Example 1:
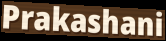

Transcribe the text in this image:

Prakashani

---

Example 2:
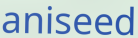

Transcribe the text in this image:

aniseed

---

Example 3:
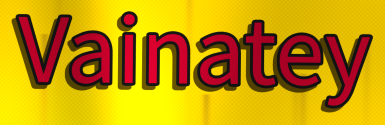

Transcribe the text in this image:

Vainatey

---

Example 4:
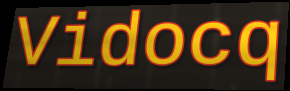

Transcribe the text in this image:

Vidocq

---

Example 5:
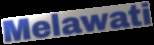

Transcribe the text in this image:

Melawati